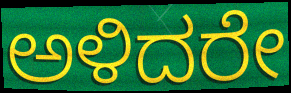
ಅಳಿದರೇ